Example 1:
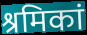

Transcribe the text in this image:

श्रमिकां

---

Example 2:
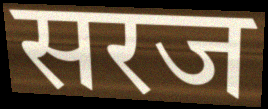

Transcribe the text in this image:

सरज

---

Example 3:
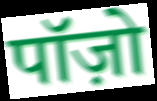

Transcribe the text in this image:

पॉज़ो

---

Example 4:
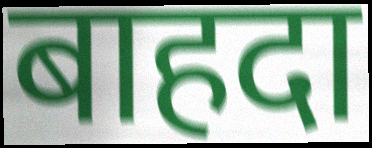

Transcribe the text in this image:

बाहदा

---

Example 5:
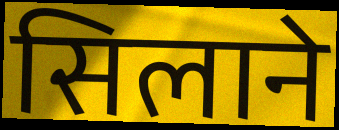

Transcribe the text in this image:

सिलाने